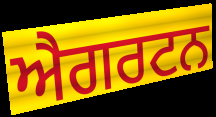
ਐਗਰਟਨ